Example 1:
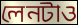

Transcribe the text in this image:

লেনটাও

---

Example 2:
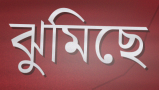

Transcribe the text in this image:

ঝুমিছে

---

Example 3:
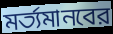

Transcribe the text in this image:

মর্ত্যমানবের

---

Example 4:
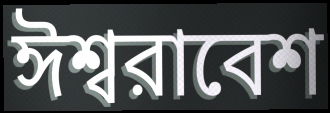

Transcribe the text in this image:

ঈশ্বরাবেশ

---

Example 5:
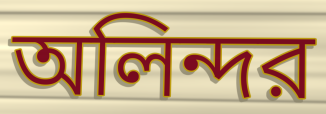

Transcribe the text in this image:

অলিন্দর